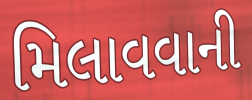
મિલાવવાની